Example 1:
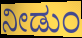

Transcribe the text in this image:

ನೀಡುಂ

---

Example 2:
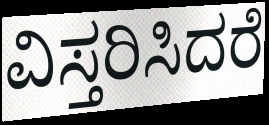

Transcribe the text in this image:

ವಿಸ್ತರಿಸಿದರೆ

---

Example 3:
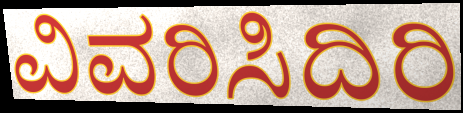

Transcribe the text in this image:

ವಿವರಿಸಿದಿರಿ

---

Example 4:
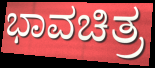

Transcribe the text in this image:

ಭಾವಚಿತ್ರ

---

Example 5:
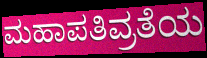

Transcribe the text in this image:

ಮಹಾಪತಿವ್ರತೆಯ